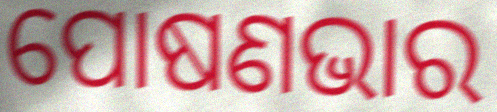
ପୋଷଣଭାର